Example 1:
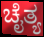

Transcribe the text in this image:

ಚೈತ್ಯ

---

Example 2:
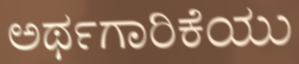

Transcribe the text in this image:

ಅರ್ಥಗಾರಿಕೆಯು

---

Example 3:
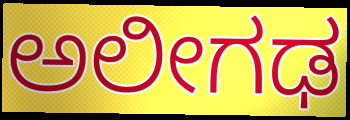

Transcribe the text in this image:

ಅಲೀಗಢ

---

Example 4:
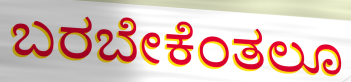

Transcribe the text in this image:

ಬರಬೇಕೆಂತಲೂ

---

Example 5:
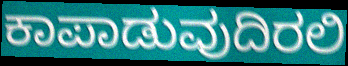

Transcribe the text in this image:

ಕಾಪಾಡುವುದಿರಲಿ